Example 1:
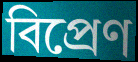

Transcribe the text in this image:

বিপ্রেণ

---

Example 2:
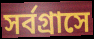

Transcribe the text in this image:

সর্বগ্রাসে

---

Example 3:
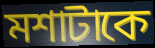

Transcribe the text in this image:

মশাটাকে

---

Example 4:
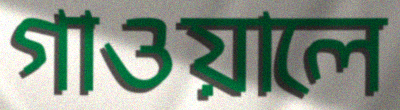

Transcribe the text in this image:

গাওয়ালে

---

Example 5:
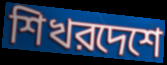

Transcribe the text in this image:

শিখরদেশে